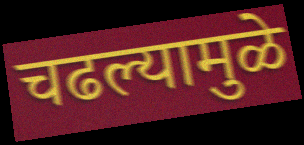
चढल्यामुळे